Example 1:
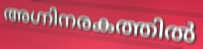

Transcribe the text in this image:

അഗ്നിനരകത്തിൽ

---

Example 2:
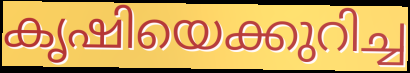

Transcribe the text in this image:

കൃഷിയെക്കുറിച്ച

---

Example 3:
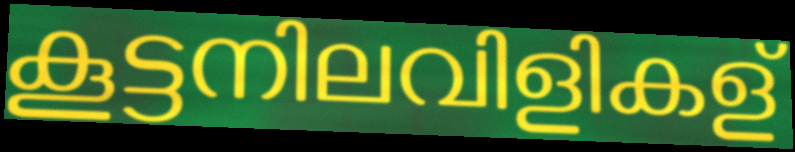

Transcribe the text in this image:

കൂട്ടനിലവിളികള്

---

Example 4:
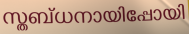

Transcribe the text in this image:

സ്തബ്ധനായിപ്പോയി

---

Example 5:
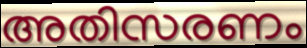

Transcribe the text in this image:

അതിസരണം